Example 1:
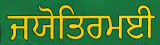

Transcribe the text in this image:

ਜਯੋਤਿਰਮਈ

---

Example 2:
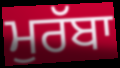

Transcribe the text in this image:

ਮੁਰੱਬਾ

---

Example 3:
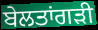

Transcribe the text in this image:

ਬੇਲਤਾਂਗੜੀ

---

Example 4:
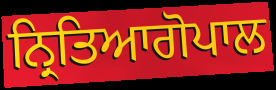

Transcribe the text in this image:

ਨ੍ਰਿਤਿਆਗੋਪਾਲ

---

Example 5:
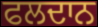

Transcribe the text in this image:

ਫਲਦਾਨ